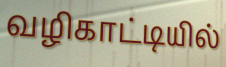
வழிகாட்டியில்